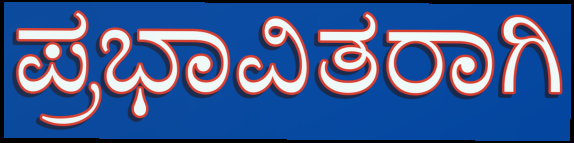
ಪ್ರಭಾವಿತರಾಗಿ